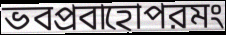
ভবপ্রবাহোপরমং